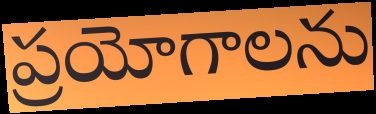
ప్రయోగాలను